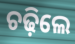
ଚଢ଼ିଲେ